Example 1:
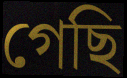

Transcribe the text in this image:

গেছি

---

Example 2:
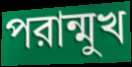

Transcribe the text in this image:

পরান্মুখ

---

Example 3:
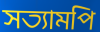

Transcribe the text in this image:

সত্যামপি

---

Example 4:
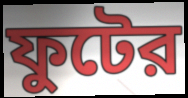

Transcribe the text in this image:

ফুটের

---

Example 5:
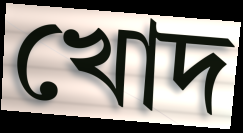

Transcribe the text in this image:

খোদ